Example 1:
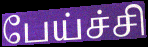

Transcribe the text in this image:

பேய்ச்சி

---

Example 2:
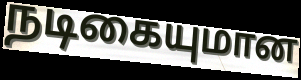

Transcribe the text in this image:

நடிகையுமான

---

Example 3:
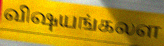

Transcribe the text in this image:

விஷயங்கலள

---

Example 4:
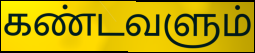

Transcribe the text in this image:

கண்டவளும்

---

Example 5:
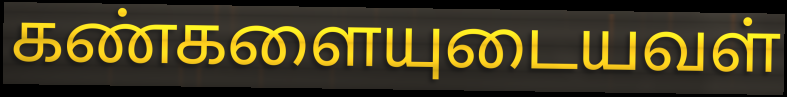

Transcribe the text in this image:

கண்களையுடையவள்